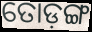
ତୋଡ଼ଙ୍ଗ